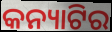
କନ୍ୟାଟିର